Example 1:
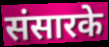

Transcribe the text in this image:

संसारके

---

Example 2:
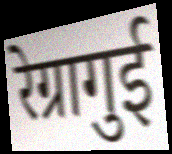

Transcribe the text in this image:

रेग्रागुई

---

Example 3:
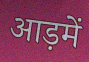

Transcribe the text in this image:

आड़में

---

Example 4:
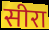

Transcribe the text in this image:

सीरा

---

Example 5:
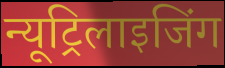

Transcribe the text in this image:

न्यूट्रिलाइजिंग